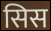
सिस